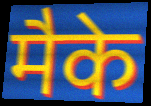
मैके